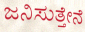
ಜನಿಸುತ್ತೇನೆ